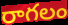
రాగలం